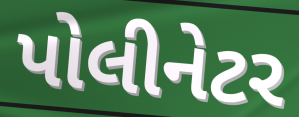
પોલીનેટર